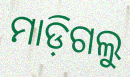
ମାଡ଼ିଗଲୁ